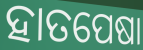
ହାତପେଷା